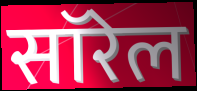
सॉरेल